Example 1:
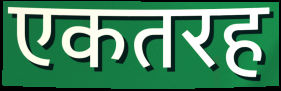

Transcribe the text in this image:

एकतरह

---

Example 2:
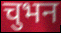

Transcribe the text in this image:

चुभन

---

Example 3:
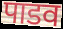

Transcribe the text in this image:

पाडव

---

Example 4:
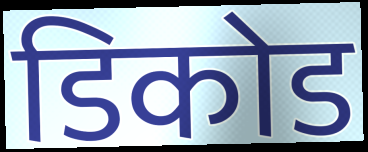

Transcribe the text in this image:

डिकोड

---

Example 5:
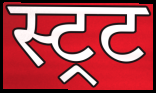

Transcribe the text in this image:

स्ट्रट